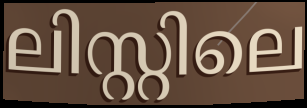
ലിസ്റ്റിലെ